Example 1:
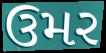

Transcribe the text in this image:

ઉમર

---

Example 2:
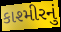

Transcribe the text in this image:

કાશ્મીરનું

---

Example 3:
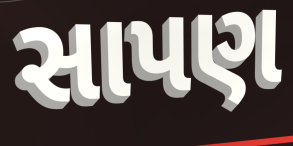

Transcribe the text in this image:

સાપણ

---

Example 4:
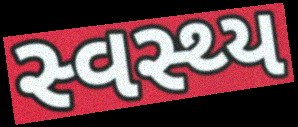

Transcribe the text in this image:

સ્વસ્થ્ય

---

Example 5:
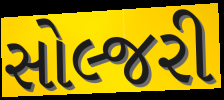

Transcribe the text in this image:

સોલ્જરી